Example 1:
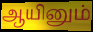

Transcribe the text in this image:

ஆயினும்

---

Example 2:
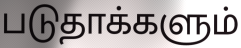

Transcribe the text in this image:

படுதாக்களும்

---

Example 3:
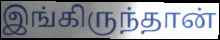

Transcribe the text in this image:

இங்கிருந்தான்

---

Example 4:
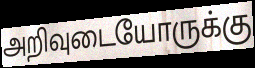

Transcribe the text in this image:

அறிவுடையோருக்கு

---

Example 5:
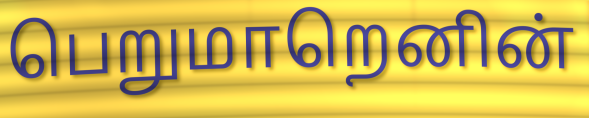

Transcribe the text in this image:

பெறுமாறெனின்